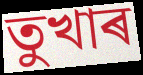
তুখাৰ